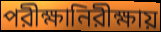
পরীক্ষানিরীক্ষায়